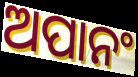
ଅପାନଂ